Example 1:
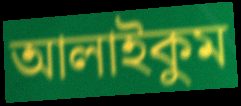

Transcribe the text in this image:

আলাইকুম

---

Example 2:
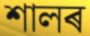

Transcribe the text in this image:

শালৰ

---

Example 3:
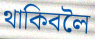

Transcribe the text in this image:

থাকিবলৈ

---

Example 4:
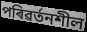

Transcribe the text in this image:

পৰিৱৰ্তনশীল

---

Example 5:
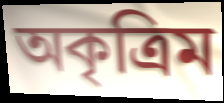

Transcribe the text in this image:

অকৃত্ৰিম